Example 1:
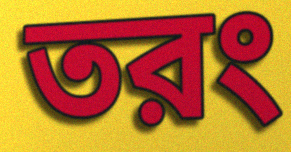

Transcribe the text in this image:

তরং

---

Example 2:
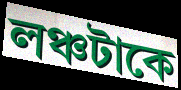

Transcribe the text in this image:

লঞ্চটাকে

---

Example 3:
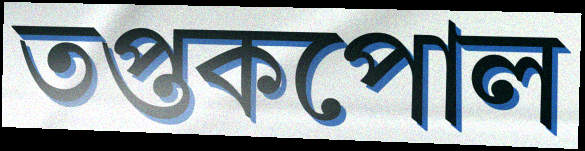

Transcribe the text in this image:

তপ্তকপোল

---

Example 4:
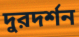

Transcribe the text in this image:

দুরদর্শন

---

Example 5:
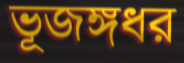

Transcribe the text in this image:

ভূজঙ্গধর